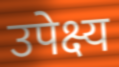
उपेक्ष्य